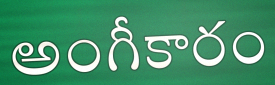
అంగీకారం